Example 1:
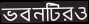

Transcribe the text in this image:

ভবনটিরও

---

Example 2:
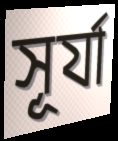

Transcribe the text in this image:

সূর্যা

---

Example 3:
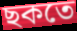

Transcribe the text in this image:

ছকতে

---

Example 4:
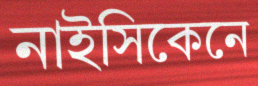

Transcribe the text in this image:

নাইসিকেনে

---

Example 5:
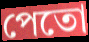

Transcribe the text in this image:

পেতো